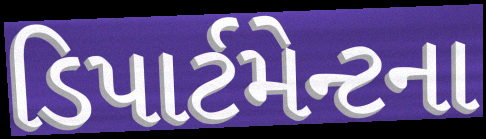
ડિપાર્ટમેન્ટના